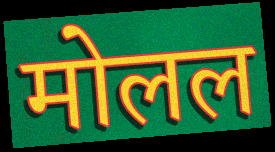
मोलल